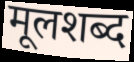
मूलशब्द